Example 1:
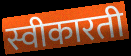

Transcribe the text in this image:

स्वीकारती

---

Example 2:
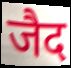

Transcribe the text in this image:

जैद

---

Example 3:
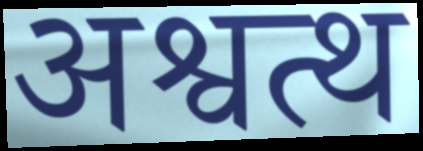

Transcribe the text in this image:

अश्वत्थ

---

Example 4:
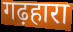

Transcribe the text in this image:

गढ़हारा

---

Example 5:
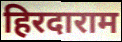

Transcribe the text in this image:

हिरदाराम